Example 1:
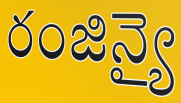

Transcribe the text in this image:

రంజిన్యై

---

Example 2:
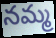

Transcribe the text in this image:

నమ్మ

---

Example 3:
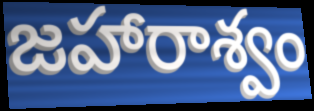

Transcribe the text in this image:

జహారాశ్వం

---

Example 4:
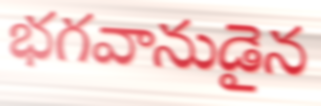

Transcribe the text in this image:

భగవానుడైన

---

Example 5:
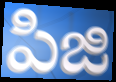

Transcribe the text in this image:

పిజి